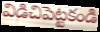
విడిచిపెట్టకండి